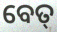
ବେତ୍